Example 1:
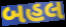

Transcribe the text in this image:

બહલ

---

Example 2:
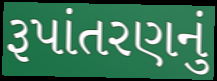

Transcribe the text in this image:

રૂપાંતરણનું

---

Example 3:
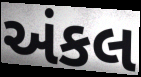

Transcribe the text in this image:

અંકલ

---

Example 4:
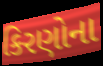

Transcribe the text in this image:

કિરણોના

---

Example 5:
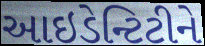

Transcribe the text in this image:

આઇડેન્ટિટીને